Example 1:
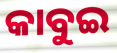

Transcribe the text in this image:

କାବୁଇ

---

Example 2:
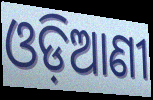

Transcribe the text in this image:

ଓଡ଼ିଆଣୀ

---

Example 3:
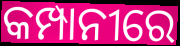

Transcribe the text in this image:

କମ୍ପାନୀରେ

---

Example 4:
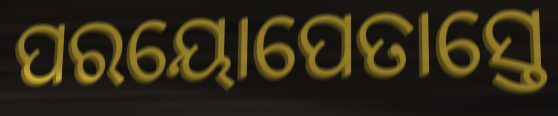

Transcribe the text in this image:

ପରୟୋପେତାସ୍ତେ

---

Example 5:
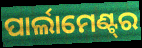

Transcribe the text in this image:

ପାର୍ଲାମେଣ୍ଟ୍‌ର